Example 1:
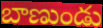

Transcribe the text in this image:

బాణుండు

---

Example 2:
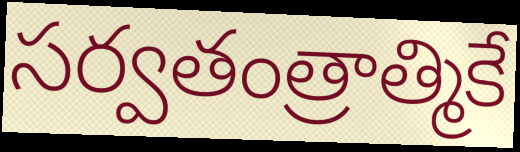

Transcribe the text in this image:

సర్వతంత్రాత్మికే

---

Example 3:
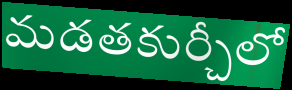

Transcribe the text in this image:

మడతకుర్చీలో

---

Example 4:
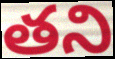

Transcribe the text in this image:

తని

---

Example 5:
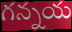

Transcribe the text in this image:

గన్నయ